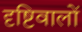
दृष्टिवालों